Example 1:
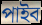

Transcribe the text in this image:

পাইব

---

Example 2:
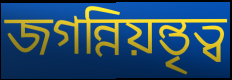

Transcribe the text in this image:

জগন্নিয়ন্তৃত্ব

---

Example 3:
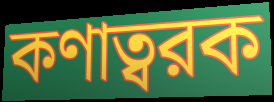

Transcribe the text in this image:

কণাত্বরক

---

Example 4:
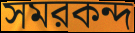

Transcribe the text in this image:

সমরকন্দ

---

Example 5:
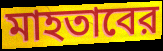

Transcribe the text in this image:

মাহতাবের